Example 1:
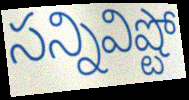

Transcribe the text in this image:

సన్నివిష్టో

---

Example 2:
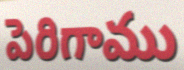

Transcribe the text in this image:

పెరిగాము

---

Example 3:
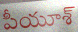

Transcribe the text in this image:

పీయూశ్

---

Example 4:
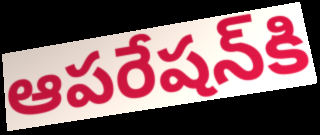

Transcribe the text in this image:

ఆపరేషన్‌కి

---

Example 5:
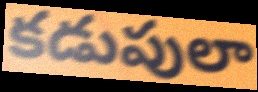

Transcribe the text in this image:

కడుపులా